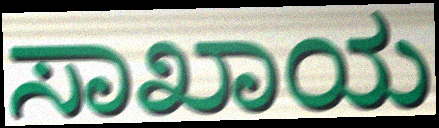
ಸಾಖಾಯ